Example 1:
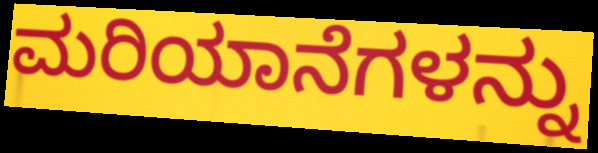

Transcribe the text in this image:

ಮರಿಯಾನೆಗಳನ್ನು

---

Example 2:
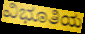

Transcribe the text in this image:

ವಿಭೂತಿಯ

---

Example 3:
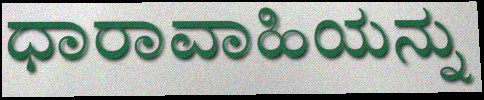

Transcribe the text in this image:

ಧಾರಾವಾಹಿಯನ್ನು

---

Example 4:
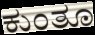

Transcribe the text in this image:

ಕುಂತೂ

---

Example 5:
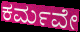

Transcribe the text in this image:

ಕರ್ಮವೇ